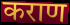
कराण